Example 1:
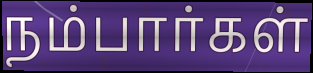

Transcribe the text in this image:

நம்பார்கள்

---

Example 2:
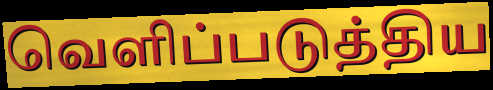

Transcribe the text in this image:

வெளிப்படுத்திய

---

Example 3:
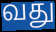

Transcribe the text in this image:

வது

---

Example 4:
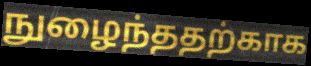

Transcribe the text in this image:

நுழைந்ததற்காக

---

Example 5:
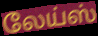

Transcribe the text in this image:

லேய்ஸ்